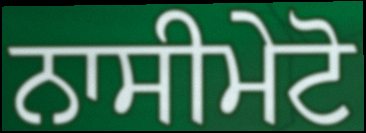
ਨਾਸੀਮੇਟੋ